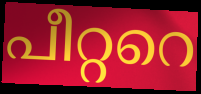
പീറ്ററെ